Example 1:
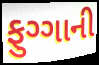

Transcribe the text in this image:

ફુગ્ગાની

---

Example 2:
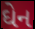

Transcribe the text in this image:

ઘેન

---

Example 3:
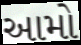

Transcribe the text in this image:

આમો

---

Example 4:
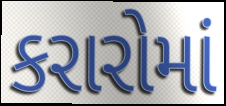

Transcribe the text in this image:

કરારોમાં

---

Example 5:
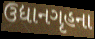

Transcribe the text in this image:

ઉદ્યાનગૃહના